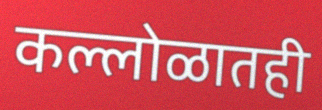
कल्लोळातही